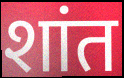
शांत